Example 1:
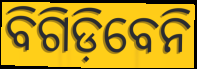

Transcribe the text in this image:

ବିଗିଡ଼ିବେନି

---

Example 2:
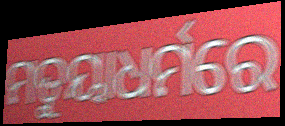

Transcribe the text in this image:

ମତୁୟାଧର୍ମରେ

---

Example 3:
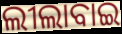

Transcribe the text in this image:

ଲୀଲାବାଇ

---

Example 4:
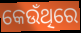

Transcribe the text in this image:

କେଉଁଥିରେ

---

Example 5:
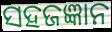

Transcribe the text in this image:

ସହଜଜ୍ଞାନ